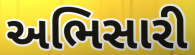
અભિસારી